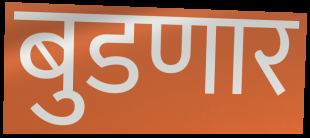
बुडणार